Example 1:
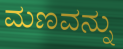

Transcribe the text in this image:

ಮಣವನ್ನು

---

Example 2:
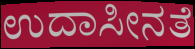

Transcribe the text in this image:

ಉದಾಸೀನತೆ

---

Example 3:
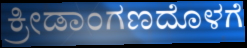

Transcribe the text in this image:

ಕ್ರೀಡಾಂಗಣದೊಳಗೆ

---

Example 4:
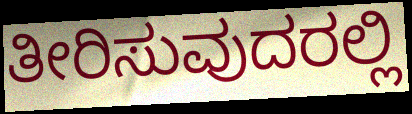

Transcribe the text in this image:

ತೀರಿಸುವುದರಲ್ಲಿ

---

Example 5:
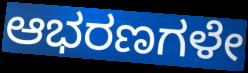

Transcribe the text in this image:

ಆಭರಣಗಳೇ